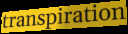
transpiration